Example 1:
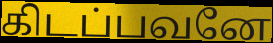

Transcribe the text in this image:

கிடப்பவனே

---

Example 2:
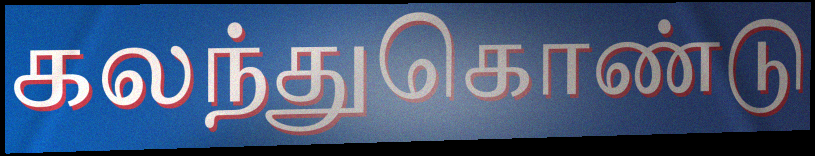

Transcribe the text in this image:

கலந்துகொண்டு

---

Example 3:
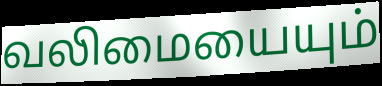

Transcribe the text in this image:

வலிமையையும்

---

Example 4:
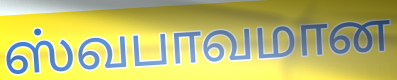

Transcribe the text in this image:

ஸ்வபாவமான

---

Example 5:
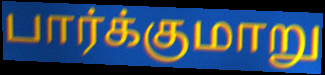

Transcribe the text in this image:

பார்க்குமாறு